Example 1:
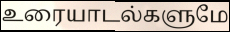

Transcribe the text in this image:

உரையாடல்களுமே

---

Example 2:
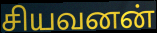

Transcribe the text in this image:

சியவனன்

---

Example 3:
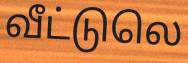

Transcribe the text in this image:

வீட்டுலெ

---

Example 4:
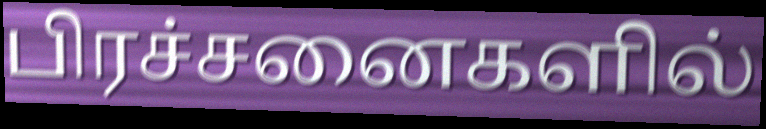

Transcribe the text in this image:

பிரச்சனைகளில்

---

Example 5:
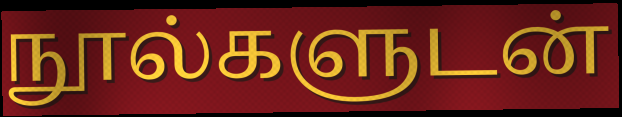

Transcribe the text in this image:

நூல்களுடன்